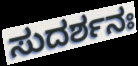
ಸುದರ್ಶನಃ